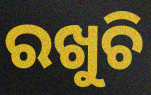
ରଖୁଚି